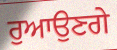
ਰੁਆਉਣਗੇ